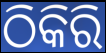
ଠିକିରି